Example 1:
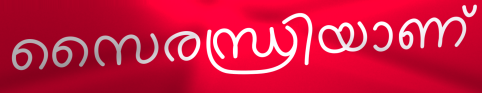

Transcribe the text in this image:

സൈരന്ധ്രിയാണ്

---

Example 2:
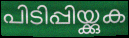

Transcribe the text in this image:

പിടിപ്പിയ്ക്കുക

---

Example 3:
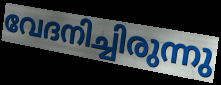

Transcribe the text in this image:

വേദനിച്ചിരുന്നു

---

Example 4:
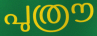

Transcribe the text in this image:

പുത്രൗ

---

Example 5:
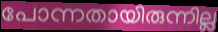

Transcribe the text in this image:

പോന്നതായിരുന്നില്ല